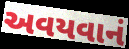
અવયવાનં